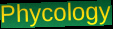
Phycology